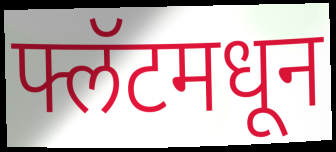
फ्लॅटमधून